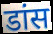
डांस